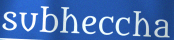
subheccha